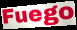
Fuego